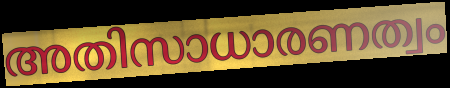
അതിസാധാരണത്വം